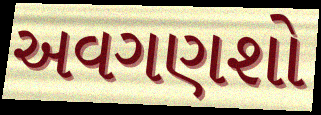
અવગણશો